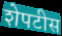
शेपटीस